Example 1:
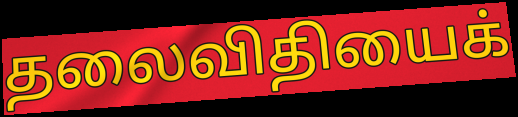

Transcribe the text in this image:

தலைவிதியைக்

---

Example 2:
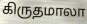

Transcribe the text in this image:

கிருதமாலா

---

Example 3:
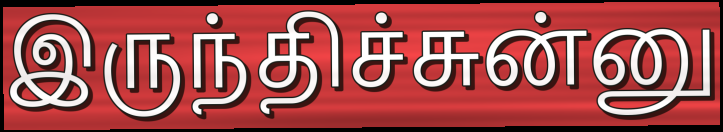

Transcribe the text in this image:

இருந்திச்சுன்னு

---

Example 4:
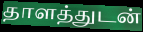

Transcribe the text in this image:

தாளத்துடன்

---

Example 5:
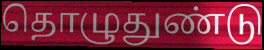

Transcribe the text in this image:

தொழுதுண்டு